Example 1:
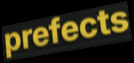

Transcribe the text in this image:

prefects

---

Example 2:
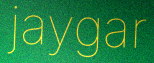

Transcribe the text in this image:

jaygar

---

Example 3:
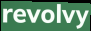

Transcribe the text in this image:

revolvy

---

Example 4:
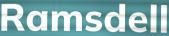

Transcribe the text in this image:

Ramsdell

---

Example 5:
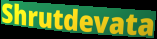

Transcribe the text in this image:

Shrutdevata